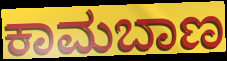
ಕಾಮಬಾಣ